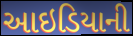
આઇડિયાની